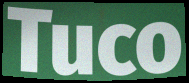
Tuco